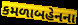
કમળાબહેનના